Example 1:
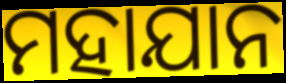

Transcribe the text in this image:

ମହାଯାନ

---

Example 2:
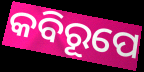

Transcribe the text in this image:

କବିରୂପେ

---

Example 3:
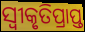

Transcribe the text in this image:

ସ୍ବୀକୃତିପ୍ରାପ୍ତ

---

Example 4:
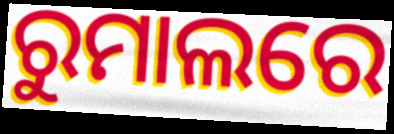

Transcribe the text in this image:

ରୁମାଲରେ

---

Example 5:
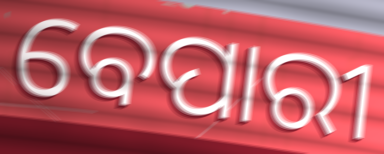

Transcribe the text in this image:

ବେପାରୀ